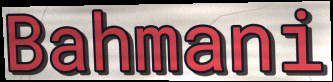
Bahmani